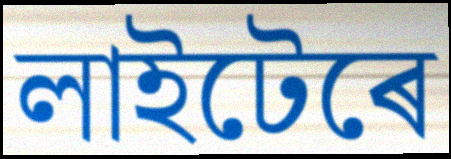
লাইটেৰে